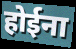
होईना